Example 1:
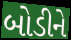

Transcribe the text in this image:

બોડીને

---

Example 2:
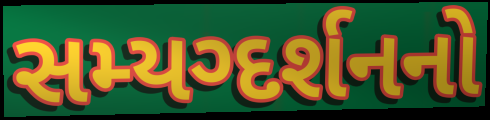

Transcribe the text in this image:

સમ્યગ્દર્શનનો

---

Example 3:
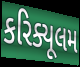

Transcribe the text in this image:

કરિક્યૂલમ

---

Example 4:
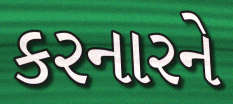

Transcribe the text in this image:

કરનારને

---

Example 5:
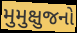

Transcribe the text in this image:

મુમુક્ષુજનો